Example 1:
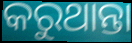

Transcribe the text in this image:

କରୁଥାନ୍ତା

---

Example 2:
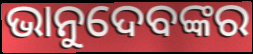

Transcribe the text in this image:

ଭାନୁଦେବଙ୍କର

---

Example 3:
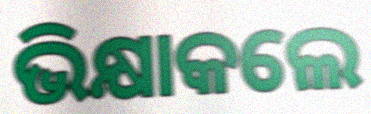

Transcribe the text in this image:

ଭିକ୍ଷାକଲେ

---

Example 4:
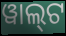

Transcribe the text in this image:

ୱାଲ୍‌ଟ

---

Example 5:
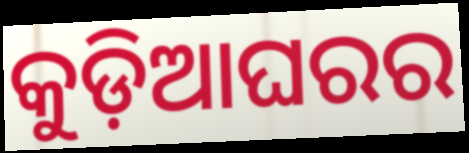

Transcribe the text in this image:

କୁଡ଼ିଆଘରର